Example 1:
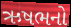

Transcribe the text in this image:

ઋષભનો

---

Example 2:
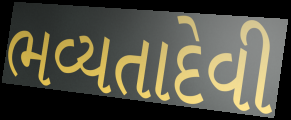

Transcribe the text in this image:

ભવ્યતાદેવી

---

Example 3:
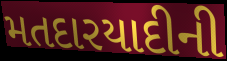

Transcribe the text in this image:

મતદારયાદીની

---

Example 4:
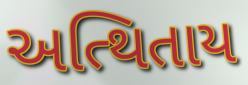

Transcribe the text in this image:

અત્થિતાય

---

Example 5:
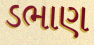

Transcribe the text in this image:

ડભાણ